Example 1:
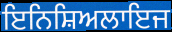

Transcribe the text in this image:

ਇਨਿਸ਼ਿਅਲਾਇਜ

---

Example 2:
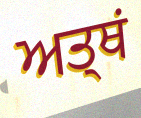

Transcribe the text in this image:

ਅਤ੍ਥਂ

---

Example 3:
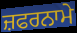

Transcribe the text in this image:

ਜ਼ਫਰਨਾਮੇ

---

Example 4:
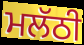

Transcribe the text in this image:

ਮਲੱਠੀ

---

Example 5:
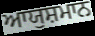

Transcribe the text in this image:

ਆਯੁਸ਼ਮਾਨ